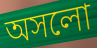
অসলো